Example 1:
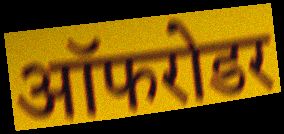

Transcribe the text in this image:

ऑफरोडर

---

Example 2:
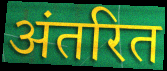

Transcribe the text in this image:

अंतरित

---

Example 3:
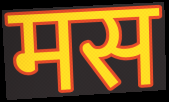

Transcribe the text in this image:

मस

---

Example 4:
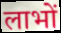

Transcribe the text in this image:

लाभों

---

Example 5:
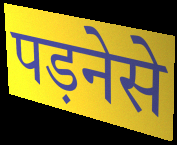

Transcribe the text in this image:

पड़नेसे